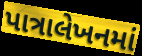
પાત્રાલેખનમાં